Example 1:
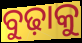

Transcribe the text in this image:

ବୁଢ଼ାକୁ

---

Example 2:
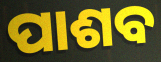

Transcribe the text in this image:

ପାଶବ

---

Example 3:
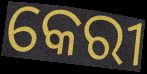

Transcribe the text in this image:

କେରୀ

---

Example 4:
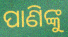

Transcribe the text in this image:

ପାଣିଙ୍କୁ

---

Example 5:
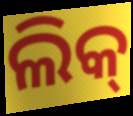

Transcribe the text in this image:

ଲିକ୍